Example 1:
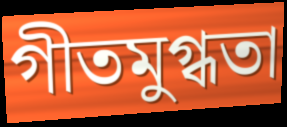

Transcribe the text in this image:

গীতমুগ্ধতা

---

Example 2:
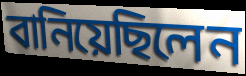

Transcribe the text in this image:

বানিয়েছিলেন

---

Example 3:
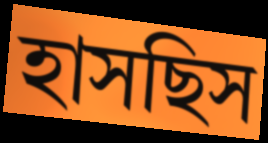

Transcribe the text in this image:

হাসছিস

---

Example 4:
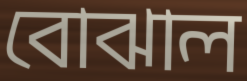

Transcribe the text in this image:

বোঝাল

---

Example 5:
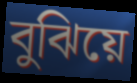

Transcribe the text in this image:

বুঝিয়ে